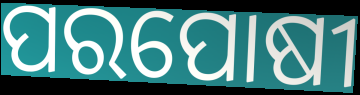
ପରପୋଷୀ